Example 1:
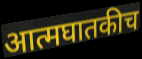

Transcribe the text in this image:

आत्मघातकीच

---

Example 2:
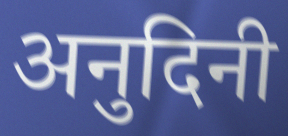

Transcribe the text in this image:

अनुदिनी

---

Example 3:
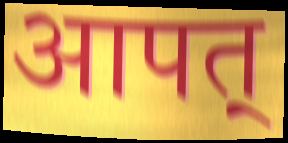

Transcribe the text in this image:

आपत्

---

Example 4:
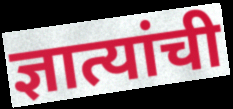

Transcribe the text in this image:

ज्ञात्यांची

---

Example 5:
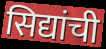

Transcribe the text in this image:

सिद्यांची